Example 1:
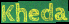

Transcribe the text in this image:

Kheda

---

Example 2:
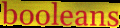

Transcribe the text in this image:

booleans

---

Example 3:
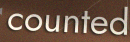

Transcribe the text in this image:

counted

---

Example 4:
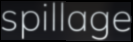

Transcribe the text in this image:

spillage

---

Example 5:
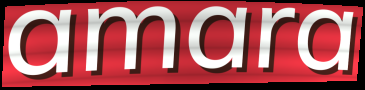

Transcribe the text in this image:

amara